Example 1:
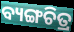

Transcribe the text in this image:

ବ୍ୟଙ୍ଗଚିତ୍ର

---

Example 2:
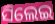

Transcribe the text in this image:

ସିଲେଇ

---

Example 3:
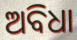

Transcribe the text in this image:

ଅବିଧା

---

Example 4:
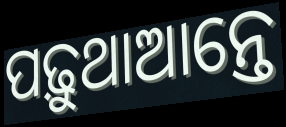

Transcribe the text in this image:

ପଢ଼ୁଥାଆନ୍ତେ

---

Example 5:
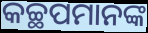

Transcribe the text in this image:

କଚ୍ଛପମାନଙ୍କ